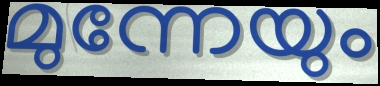
മുന്നേയും